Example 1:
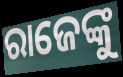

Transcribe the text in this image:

ରାଜେଙ୍କୁ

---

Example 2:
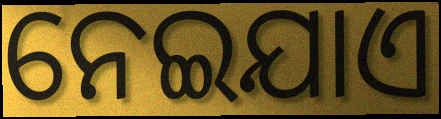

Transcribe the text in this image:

ନେଇଯାଏ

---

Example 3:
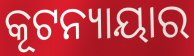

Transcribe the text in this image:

କୂଟନ୍ୟାୟାର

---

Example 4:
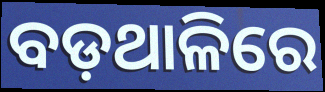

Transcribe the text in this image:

ବଡ଼ଥାଳିରେ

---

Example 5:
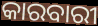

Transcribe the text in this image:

କାରବାରୀ